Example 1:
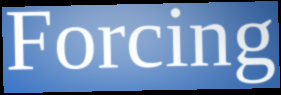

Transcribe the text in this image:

Forcing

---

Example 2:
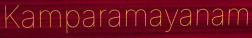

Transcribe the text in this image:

Kamparamayanam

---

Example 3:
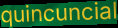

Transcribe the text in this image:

quincuncial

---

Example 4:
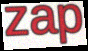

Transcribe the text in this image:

zap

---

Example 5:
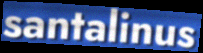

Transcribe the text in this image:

santalinus